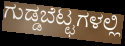
ಗುಡ್ಡಬೆಟ್ಟಗಳಲ್ಲಿ